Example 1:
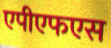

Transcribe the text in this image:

एपीएफएस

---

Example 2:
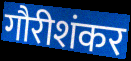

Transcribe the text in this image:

गौरीशंकर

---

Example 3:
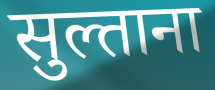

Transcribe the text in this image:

सुल्ताना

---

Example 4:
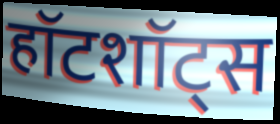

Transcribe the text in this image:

हॉटशॉट्स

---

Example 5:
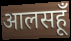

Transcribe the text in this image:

आलसहूँ